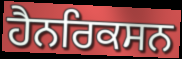
ਹੈਨਰਿਕਸਨ